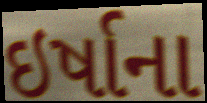
ઇર્ષાના